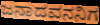
ಜನಾದವನನಿಗ